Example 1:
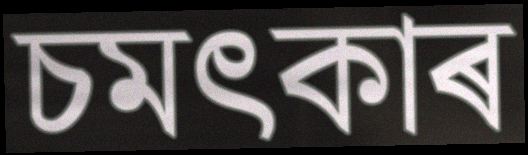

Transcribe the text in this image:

চমৎকাৰ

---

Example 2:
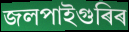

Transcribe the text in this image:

জলপাইগুৰিৰ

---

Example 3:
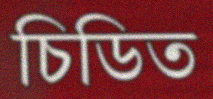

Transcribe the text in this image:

চিডিত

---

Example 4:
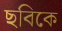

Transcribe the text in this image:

ছবিকে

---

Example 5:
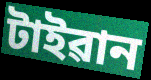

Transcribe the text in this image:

টাইৱান